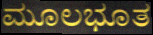
ಮೂಲಭೂತ